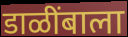
डाळींबाला